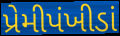
પ્રેમીપંખીડાં